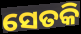
ସେତକି